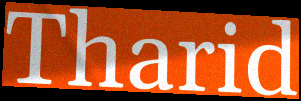
Tharid